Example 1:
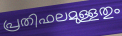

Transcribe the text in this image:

പ്രതിഫലമുള്ളതും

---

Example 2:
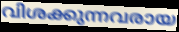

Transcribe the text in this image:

വിശക്കുന്നവരായ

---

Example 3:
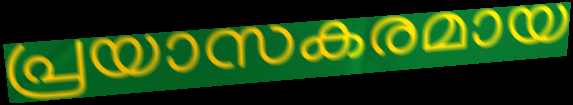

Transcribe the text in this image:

പ്രയാസകരമായ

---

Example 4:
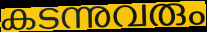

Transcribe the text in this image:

കടന്നുവരും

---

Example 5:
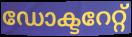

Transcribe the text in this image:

ഡോക്ടറേറ്റ്